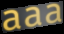
aaa